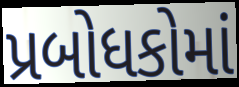
પ્રબોધકોમાં